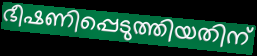
ഭീഷണിപ്പെടുത്തിയതിന്